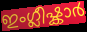
ഇംഗ്ലീഷ്കാർ